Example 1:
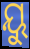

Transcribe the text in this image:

ୟୁ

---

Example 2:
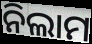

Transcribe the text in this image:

ନିଲାମ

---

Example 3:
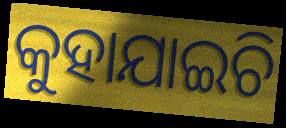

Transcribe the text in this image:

କୁହାଯାଇଚି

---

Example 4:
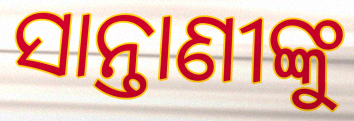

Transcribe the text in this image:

ସାନ୍ତାଣୀଙ୍କୁ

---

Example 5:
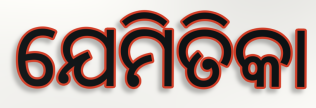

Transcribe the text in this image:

ଯେମିତିକା